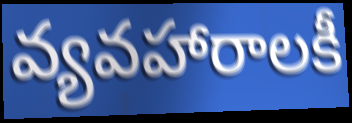
వ్యవహారాలకీ